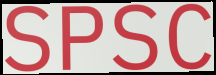
SPSC